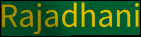
Rajadhani